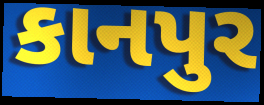
કાનપુર